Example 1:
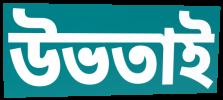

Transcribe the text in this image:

উভতাই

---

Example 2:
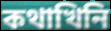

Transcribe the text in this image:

কথাখিনি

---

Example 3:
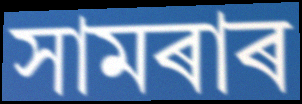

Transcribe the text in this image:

সামৰাৰ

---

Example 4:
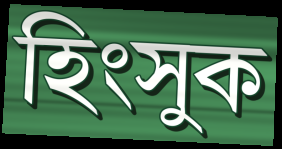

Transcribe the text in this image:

হিংসুক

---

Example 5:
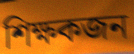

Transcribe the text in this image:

শিক্ষকজন